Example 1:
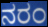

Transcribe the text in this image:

ನರಂ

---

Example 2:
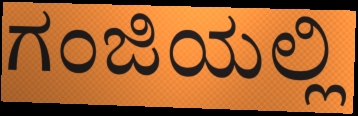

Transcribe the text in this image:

ಗಂಜಿಯಲ್ಲಿ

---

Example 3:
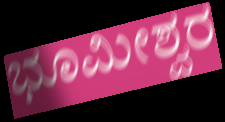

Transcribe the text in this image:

ಭೂಮೀಶ್ವರ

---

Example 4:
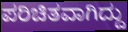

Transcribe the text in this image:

ಪರಿಚಿತವಾಗಿದ್ದು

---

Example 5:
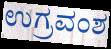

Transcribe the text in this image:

ಉಗ್ರವಂಶ